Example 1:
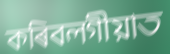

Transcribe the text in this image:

কৰিবলগীয়াত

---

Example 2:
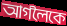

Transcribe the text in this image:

আগলৈকে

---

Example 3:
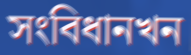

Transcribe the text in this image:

সংবিধানখন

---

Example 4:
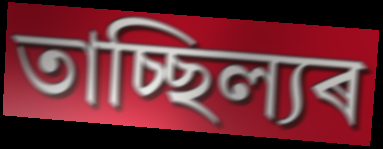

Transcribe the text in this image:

তাচ্ছিল্যৰ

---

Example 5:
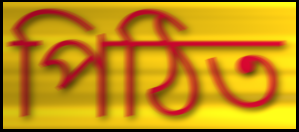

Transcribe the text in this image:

পিঠিত